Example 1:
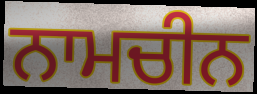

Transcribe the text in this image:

ਨਾਮਚੀਨ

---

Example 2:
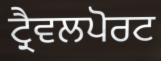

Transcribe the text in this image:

ਟ੍ਰੈਵਲਪੋਰਟ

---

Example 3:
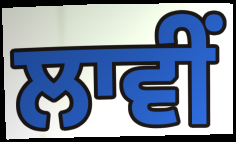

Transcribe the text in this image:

ਲਾਵੀਂ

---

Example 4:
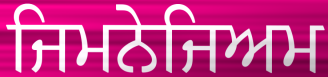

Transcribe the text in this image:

ਜਿਮਨੇਜਿਅਮ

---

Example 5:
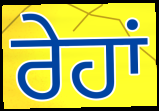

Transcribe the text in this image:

ਰੇਹਾਂ